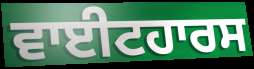
ਵਾਈਟਹਾਰਸ